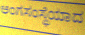
ಅಂಗಸಂಸ್ಥೆಯಾದ